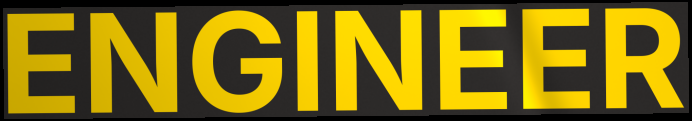
ENGINEER